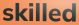
skilled